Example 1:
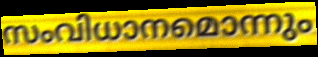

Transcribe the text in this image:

സംവിധാനമൊന്നും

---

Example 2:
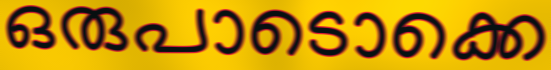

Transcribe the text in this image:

ഒരുപാടൊക്കെ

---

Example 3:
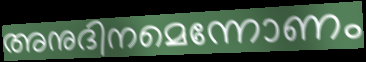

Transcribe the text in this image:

അനുദിനമെന്നോണം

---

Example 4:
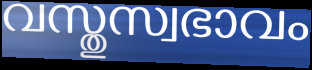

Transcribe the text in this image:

വസ്തുസ്വഭാവം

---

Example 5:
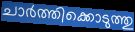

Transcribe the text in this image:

ചാർത്തിക്കൊടുത്തു